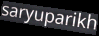
saryuparikh